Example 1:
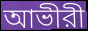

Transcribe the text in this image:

আভীরী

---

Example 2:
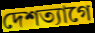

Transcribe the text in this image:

দেশত্যাগে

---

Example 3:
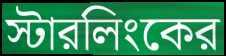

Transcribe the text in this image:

স্টারলিংকের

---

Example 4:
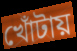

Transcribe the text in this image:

খোঁটায়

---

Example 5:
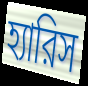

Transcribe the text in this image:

হ্যারিস